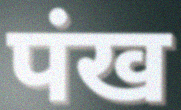
पंख